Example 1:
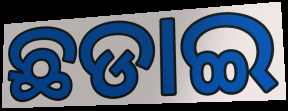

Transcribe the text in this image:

ଛଡାଇ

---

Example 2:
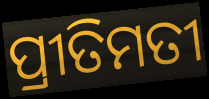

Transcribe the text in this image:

ପ୍ରୀତିମତୀ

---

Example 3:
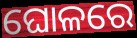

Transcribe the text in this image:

ଘୋଳରେ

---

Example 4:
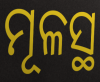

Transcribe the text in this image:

ମୂଳସ୍ଥ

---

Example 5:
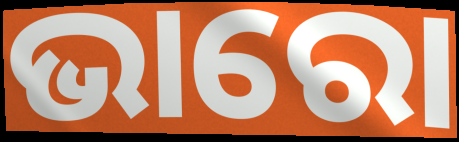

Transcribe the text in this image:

ଭାରୋ